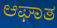
ಆಘಾತ